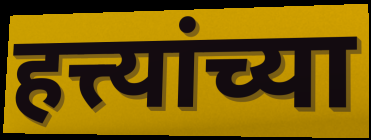
हत्त्यांच्या